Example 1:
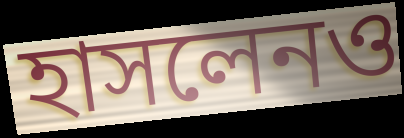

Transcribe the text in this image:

হাসলেনও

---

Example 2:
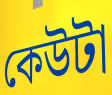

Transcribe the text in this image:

কেউটা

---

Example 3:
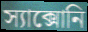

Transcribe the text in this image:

স্যাক্সোনি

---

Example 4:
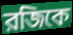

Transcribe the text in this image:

রজিকে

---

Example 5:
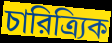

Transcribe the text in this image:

চারিত্র্যিক